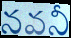
నవనీ